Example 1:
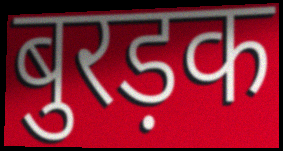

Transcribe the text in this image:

बुरड़क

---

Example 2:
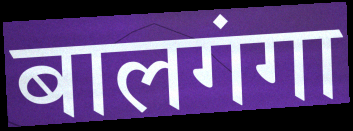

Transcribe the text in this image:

बालगंगा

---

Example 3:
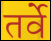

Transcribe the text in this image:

तर्वे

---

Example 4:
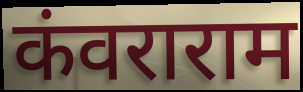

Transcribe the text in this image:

कंवराराम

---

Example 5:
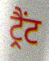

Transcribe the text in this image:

ट्रैंट